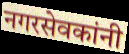
नगरसेवकांनी